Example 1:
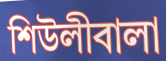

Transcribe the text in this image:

শিউলীবালা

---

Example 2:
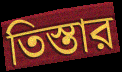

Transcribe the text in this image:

তিস্তার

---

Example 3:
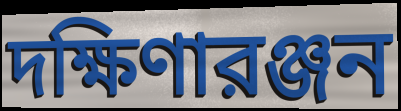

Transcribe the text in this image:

দক্ষিণারঞ্জন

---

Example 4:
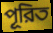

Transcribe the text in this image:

পূরিত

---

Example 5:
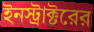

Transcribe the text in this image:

ইনস্ট্রাক্টরের